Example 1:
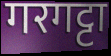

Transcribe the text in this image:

गरगट्टा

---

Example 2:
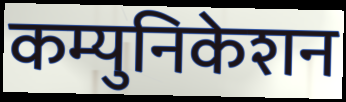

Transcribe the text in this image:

कम्युनिकेशन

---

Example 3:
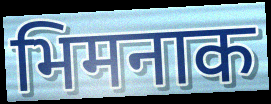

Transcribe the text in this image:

भिमनाक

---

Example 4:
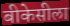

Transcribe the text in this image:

बीकेसीला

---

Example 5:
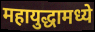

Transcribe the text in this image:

महायुद्धामध्ये